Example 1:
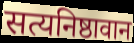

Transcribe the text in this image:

सत्यनिष्ठावान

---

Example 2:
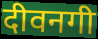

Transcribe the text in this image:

दीवनगी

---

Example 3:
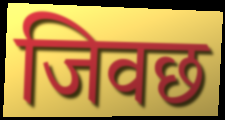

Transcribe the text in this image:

जिवछ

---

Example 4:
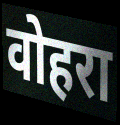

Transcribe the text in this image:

वोहरा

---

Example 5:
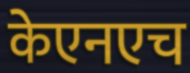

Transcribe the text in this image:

केएनएच